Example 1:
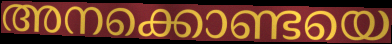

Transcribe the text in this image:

അനക്കൊണ്ടയെ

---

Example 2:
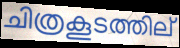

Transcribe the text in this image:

ചിത്രകൂടത്തില്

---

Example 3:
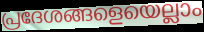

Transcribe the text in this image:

പ്രദേശങ്ങളെയെല്ലാം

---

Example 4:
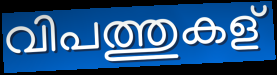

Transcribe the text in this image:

വിപത്തുകള്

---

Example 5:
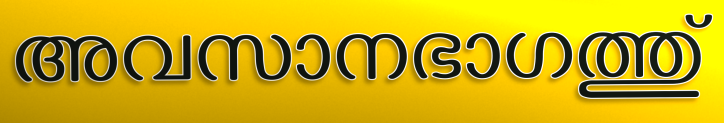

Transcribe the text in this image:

അവസാനഭാഗത്തു്